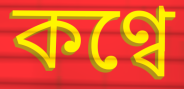
কণ্বে